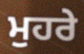
ਮੁਹਰੇ